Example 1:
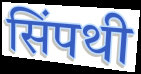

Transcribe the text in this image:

सिंपथी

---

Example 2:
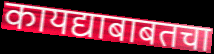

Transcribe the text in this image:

कायद्याबाबतचा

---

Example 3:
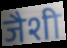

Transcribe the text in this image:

जैशी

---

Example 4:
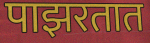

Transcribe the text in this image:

पाझरतात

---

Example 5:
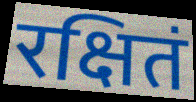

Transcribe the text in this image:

रक्षितं